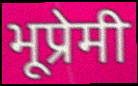
भूप्रेमी